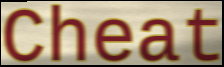
Cheat